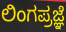
ಲಿಂಗಪ್ರಜ್ಞೆ